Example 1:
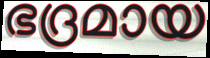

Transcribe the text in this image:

ഭദ്രമായ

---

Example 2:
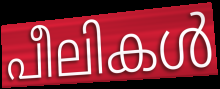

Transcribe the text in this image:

പീലികൾ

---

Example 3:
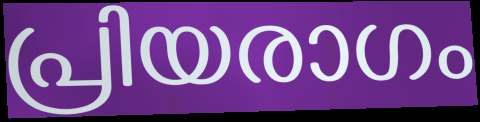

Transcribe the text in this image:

പ്രിയരാഗം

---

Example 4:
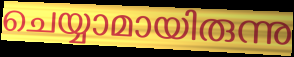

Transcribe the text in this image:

ചെയ്യാമായിരുന്നു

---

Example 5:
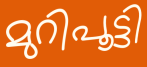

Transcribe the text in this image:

മുറിപൂട്ടി